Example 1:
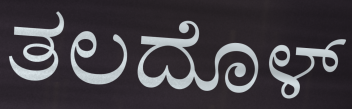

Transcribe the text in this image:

ತಲದೊಳ್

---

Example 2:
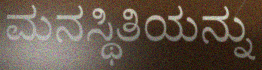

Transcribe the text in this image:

ಮನಸ್ಥಿತಿಯನ್ನು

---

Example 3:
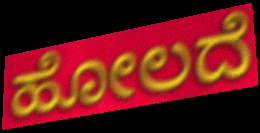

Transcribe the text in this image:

ಹೋಲದೆ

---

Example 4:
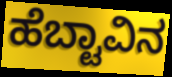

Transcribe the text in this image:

ಹೆಬ್ಟಾವಿನ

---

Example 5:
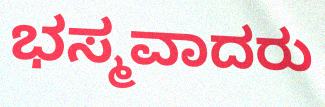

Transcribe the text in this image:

ಭಸ್ಮವಾದರು